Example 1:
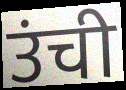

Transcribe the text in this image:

उंची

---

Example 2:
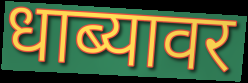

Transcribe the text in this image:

धाब्यावर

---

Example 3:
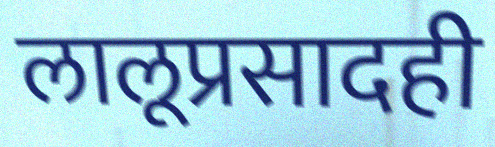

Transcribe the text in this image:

लालूप्रसादही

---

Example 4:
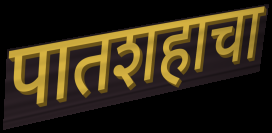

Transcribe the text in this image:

पातशहाचा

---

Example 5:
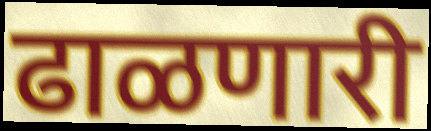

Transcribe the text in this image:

ढाळणारी